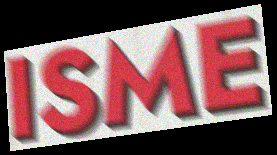
ISME